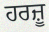
ਹਰਜ਼ੂ